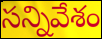
సన్నివేశం